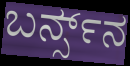
ಬರ್ನ್ಸ್‌ನ